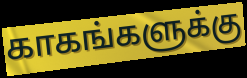
காகங்களுக்கு